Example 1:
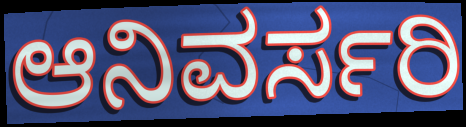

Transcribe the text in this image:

ಆನಿವರ್ಸರಿ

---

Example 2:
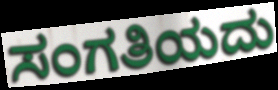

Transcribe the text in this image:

ಸಂಗತಿಯದು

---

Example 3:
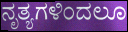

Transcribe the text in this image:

ನೃತ್ಯಗಳಿಂದಲೂ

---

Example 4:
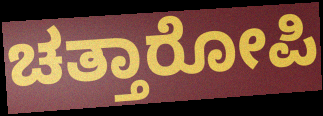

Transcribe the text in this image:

ಚತ್ತಾರೋಪಿ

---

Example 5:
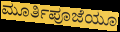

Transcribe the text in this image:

ಮೂರ್ತಿಪೂಜೆಯೂ